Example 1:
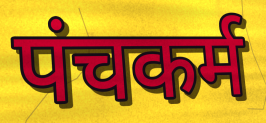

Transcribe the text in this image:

पंचकर्म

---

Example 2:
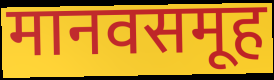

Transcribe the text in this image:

मानवसमूह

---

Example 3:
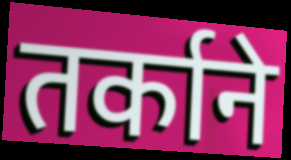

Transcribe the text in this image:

तर्काने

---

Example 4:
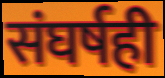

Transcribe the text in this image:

संघर्षही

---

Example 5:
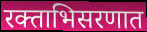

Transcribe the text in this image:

रक्ताभिसरणात